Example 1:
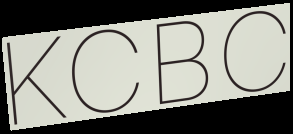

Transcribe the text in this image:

KCBC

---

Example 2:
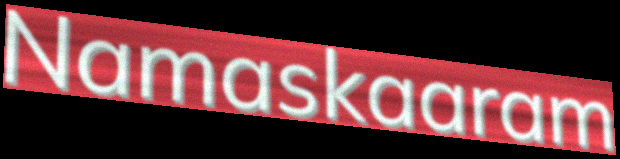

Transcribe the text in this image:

Namaskaaram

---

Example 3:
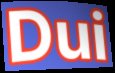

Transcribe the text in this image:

Dui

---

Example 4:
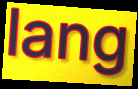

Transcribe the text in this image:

lang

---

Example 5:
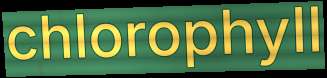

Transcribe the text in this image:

chlorophyll